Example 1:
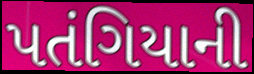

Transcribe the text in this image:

પતંગિયાની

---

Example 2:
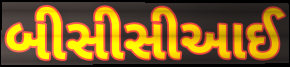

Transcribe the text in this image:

બીસીસીઆઈ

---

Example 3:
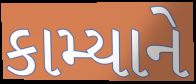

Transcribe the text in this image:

કામ્યાને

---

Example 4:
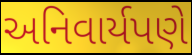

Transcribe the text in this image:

અનિવાર્યપણે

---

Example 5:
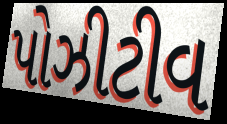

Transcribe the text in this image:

પોઝીટીવ